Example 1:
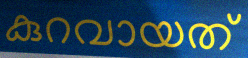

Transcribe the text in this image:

കുറവായത്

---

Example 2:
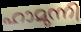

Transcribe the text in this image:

ഹാമുന്നി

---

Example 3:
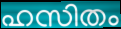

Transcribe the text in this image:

ഹസിതം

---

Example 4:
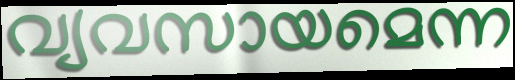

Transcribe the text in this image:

വ്യവസായമെന്ന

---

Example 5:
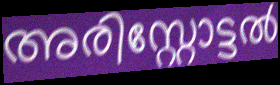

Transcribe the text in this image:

അരിസ്റ്റോട്ടൽ